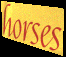
horses